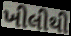
ખીલીથી